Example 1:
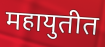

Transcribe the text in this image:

महायुतीत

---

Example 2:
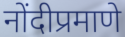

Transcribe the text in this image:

नोंदीप्रमाणे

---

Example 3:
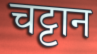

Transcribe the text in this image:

चट्टान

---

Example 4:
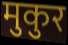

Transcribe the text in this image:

मुकुर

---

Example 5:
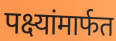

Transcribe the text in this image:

पक्ष्यांमार्फत